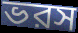
ভরস